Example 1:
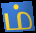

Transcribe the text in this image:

ம்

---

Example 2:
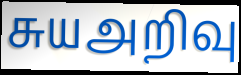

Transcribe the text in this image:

சுயஅறிவு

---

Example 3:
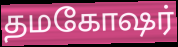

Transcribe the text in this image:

தமகோஷர்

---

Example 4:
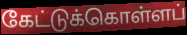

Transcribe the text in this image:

கேட்டுக்கொள்ளப்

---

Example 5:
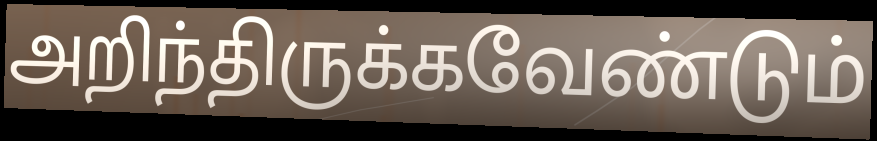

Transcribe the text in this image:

அறிந்திருக்கவேண்டும்